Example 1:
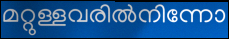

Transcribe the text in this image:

മറ്റുള്ളവരിൽനിന്നോ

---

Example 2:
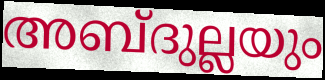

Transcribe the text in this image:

അബ്ദുല്ലയും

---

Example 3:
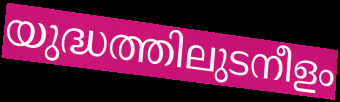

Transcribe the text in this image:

യുദ്ധത്തിലുടനീളം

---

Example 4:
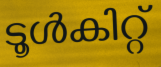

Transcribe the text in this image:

ടൂൾകിറ്റ്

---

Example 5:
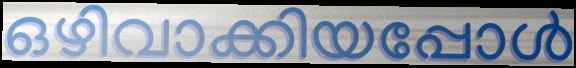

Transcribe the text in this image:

ഒഴിവാക്കിയപ്പോൾ